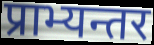
प्राभ्यन्तर